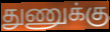
துணுக்கு